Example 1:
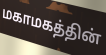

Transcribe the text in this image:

மகாமகத்தின்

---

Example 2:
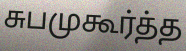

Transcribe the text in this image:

சுபமுகூர்த்த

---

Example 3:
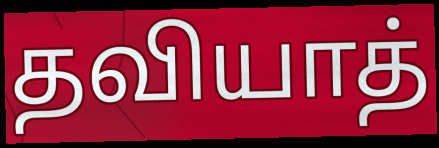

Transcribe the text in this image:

தவியாத்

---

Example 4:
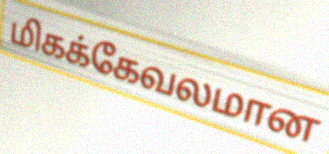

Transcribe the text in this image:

மிகக்கேவலமான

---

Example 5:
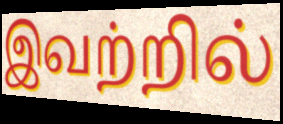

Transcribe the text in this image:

இவற்றில்